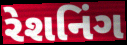
રેશનિંગ